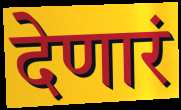
देणारं